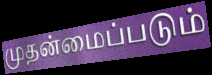
முதன்மைப்படும்